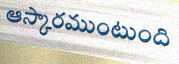
ఆస్కారముంటుంది